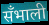
सँभाली